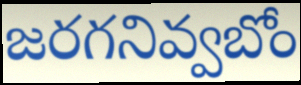
జరగనివ్వబోం